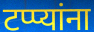
टप्प्यांना